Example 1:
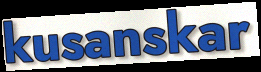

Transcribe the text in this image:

kusanskar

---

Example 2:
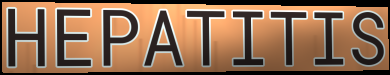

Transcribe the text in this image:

HEPATITIS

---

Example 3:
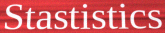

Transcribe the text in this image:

Stastistics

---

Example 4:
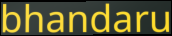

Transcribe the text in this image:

bhandaru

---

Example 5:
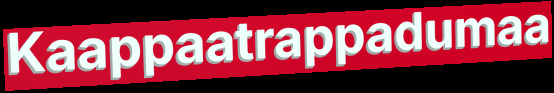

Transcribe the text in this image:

Kaappaatrappadumaa